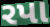
રપા